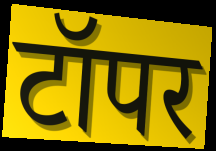
टॉपर